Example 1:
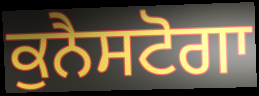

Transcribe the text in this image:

ਕੁਨੈਸਟੋਗਾ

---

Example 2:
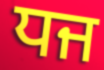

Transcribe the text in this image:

ਧਜ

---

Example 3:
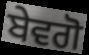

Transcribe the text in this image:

ਬੇਵਗੋ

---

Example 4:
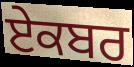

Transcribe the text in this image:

ਏਕਬਰ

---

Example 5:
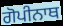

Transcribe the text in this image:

ਗੋਪੀਨਾਥ